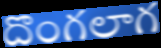
దొంగలాగ